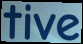
tive